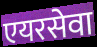
एयरसेवा